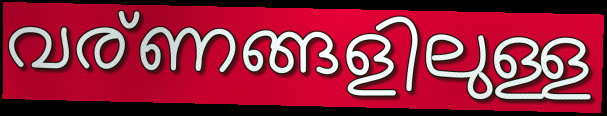
വര്ണങ്ങളിലുള്ള